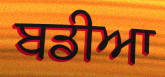
ਬਡੀਆ